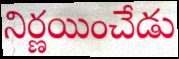
నిర్ణయించేడు